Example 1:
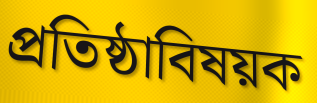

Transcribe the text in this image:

প্রতিষ্ঠাবিষয়ক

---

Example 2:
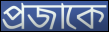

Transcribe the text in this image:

প্রজাকে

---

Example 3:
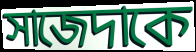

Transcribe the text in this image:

সাজেদাকে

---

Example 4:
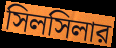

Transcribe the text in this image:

সিলসিলার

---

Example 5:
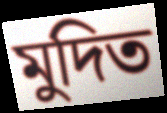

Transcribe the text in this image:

মুদিত